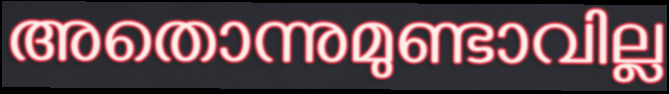
അതൊന്നുമുണ്ടാവില്ല